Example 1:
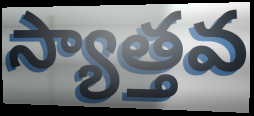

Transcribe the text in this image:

స్యాత్తవ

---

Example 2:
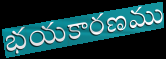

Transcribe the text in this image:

భయకారణము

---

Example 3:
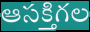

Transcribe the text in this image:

ఆసక్తిగల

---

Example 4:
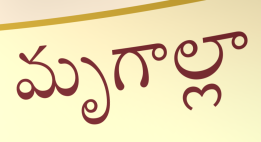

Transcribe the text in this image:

మృగాల్లా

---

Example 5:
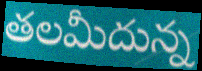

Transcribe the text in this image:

తలమీదున్న